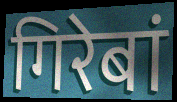
गिरेबां